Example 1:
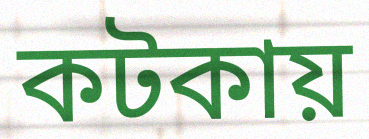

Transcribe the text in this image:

কটকায়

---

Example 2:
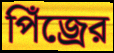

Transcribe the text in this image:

পিঁজ্রের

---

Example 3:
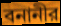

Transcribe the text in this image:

বনানীর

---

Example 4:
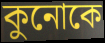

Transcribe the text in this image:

কুনোকে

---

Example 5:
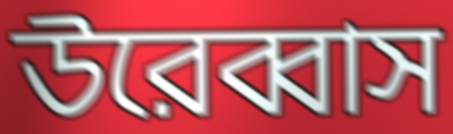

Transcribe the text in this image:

উরেব্বাস